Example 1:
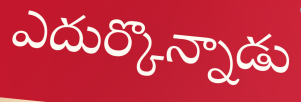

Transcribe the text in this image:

ఎదుర్కొన్నాడు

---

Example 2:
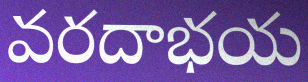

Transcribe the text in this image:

వరదాభయ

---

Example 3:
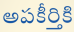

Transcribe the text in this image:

అపకీర్తికి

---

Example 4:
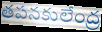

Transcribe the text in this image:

తపనకులేంద్ర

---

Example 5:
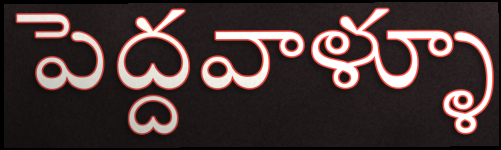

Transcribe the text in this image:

పెద్దవాళ్ళూ